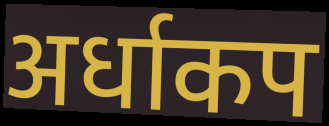
अर्धाकप